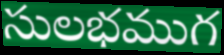
సులభముగ